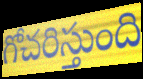
గోచరిస్తుంది